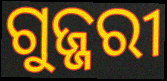
ଗୁଜ୍ଜରୀ